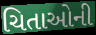
ચિતાઓની